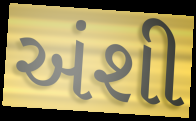
અંશી